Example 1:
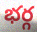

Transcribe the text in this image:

భర్గ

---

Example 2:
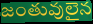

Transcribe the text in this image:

జంతువులైన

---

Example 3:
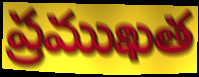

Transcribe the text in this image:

ప్రముఖత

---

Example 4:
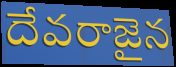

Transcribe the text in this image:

దేవరాజైన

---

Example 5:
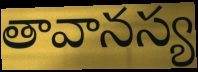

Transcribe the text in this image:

తావానస్య